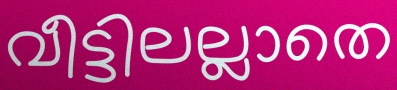
വീട്ടിലല്ലാതെ